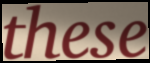
these